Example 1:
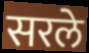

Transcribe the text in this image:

सरले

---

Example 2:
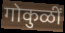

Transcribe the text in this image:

गोकुळीं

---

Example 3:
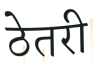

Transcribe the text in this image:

ठेतरी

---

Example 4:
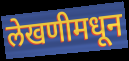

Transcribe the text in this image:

लेखणीमधून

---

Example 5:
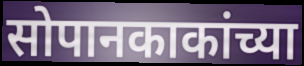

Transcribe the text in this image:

सोपानकाकांच्या